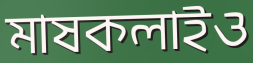
মাষকলাইও